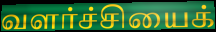
வளர்ச்சியைக்